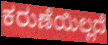
ಕರುಣೆಯಿಲ್ಲದೆ